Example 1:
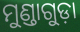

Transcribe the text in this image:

ମୁଣ୍ଡାଗୁଡ଼ା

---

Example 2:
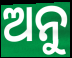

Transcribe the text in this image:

ଅନୁ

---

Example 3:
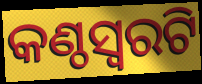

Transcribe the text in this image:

କଣ୍ଠସ୍ଵରଟି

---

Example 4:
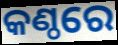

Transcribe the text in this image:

କଣ୍ଠରେ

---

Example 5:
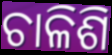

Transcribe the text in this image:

ଚାଳିଶି